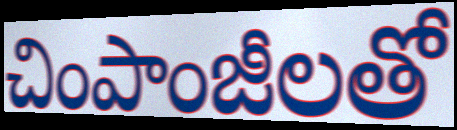
చింపాంజీలతో